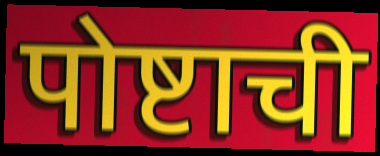
पोष्टाची